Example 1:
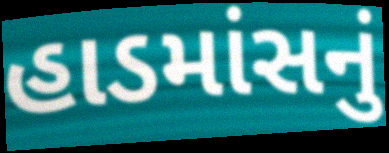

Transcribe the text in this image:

હાડમાંસનું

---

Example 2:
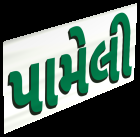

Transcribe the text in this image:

પામેલી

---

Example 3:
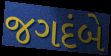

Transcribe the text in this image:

જગદંબે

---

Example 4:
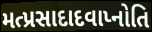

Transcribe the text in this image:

મત્પ્રસાદાદવાપ્નોતિ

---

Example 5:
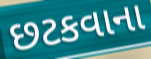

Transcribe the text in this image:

છટકવાના